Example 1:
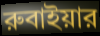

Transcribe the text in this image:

রুবাইয়ার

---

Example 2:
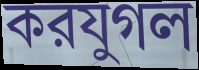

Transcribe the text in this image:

করযুগল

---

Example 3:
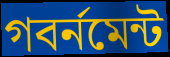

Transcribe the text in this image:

গবর্নমেন্ট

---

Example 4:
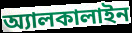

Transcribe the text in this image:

অ্যালকালাইন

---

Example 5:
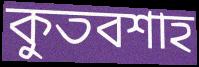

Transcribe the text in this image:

কুতবশাহ